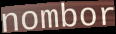
nombor